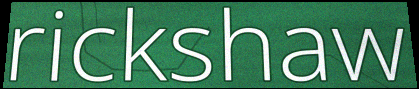
rickshaw